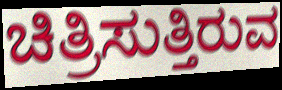
ಚಿತ್ರಿಸುತ್ತಿರುವ